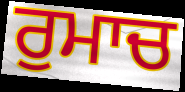
ਰੁਮਾਚ